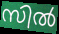
സിൽ